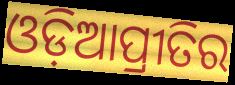
ଓଡ଼ିଆପ୍ରୀତିର